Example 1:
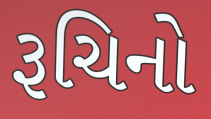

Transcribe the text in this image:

રૂચિનો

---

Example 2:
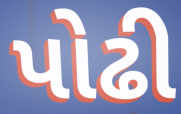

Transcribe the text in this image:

પોઢી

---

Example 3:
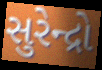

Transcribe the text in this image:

સુરેન્દ્રો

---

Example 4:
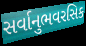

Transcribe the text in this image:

સર્વાનુભવરસિક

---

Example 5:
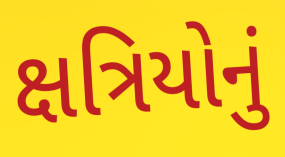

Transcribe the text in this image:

ક્ષત્રિયોનું